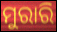
ମୁରାରି